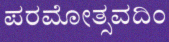
ಪರಮೋತ್ಸವದಿಂ